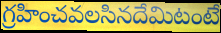
గ్రహించవలసినదేమిటంటే